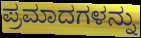
ಪ್ರಮಾದಗಳನ್ನು